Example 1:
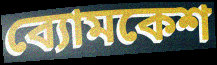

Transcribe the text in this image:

ব্যোমকেশ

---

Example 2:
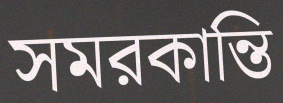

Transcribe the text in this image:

সমরকান্তি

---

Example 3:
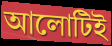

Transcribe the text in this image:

আলোটিই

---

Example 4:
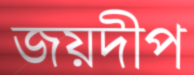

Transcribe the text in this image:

জয়দীপ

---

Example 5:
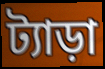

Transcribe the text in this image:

ট্যাড়া